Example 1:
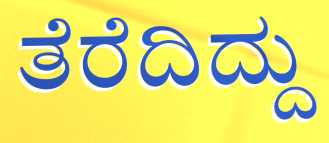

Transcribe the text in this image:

ತೆರೆದಿದ್ದು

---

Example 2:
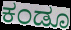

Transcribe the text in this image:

ಕಂಡೂ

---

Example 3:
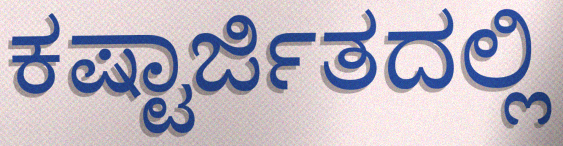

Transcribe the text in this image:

ಕಷ್ಟಾರ್ಜಿತದಲ್ಲಿ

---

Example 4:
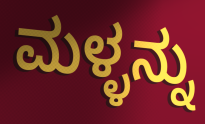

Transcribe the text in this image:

ಮಳ್ಳನ್ನು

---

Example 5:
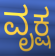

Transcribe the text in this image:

ವೃಕ್ಷ